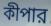
কীপার